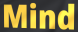
Mind